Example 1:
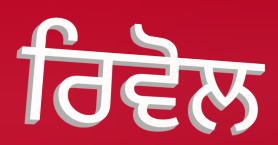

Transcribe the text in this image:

ਰਿਵੋਲ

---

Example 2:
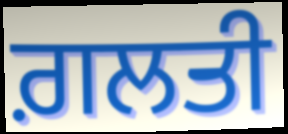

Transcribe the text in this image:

ਗ਼ਲਤੀ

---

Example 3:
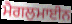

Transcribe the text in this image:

ਮੈਗਲੁਮਾਈਨ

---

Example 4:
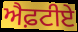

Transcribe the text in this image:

ਐਫ਼ਟੀਏ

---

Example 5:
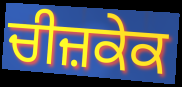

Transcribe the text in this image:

ਚੀਜ਼ਕੇਕ